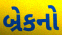
બ્રેકનો